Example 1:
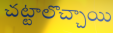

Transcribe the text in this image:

చట్టాలొచ్చాయి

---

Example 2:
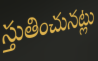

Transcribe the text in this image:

స్తుతించునట్లు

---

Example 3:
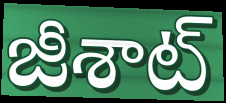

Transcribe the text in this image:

జీశాట్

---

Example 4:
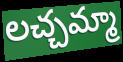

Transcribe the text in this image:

లచ్చమ్మా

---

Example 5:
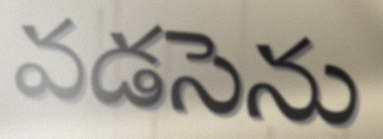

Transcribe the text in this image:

వడసెను